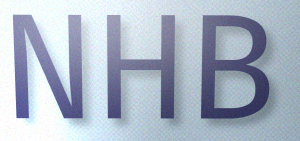
NHB